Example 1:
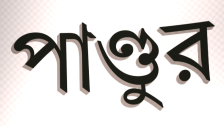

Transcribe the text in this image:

পাণ্ডুর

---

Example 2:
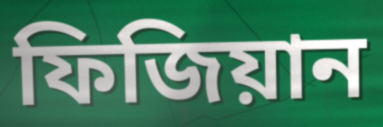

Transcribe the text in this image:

ফিজিয়ান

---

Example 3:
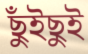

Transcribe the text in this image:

ছুঁইছুই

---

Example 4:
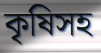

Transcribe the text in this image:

কৃষিসহ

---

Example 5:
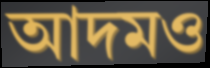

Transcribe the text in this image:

আদমও